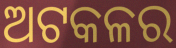
ଅଟକଳର